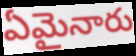
ఏమైనారు